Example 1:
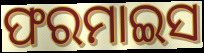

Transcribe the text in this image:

ଫରମାଇସ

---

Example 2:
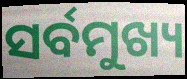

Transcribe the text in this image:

ସର୍ବମୁଖ୍ୟ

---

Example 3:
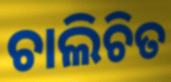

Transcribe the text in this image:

ଚାଲିଚିତ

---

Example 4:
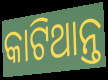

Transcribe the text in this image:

କାଟିଥାନ୍ତ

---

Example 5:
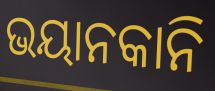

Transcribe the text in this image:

ଭୟାନକାନି